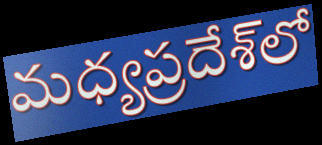
మధ్యప్రదేశ్‌లో